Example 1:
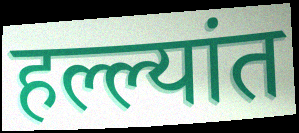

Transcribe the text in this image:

हल्ल्यांत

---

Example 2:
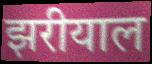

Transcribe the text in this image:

झरीयाल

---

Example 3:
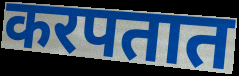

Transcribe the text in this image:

करपतात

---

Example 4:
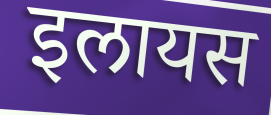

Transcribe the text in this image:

इलायस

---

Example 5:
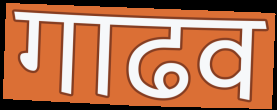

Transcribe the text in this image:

गाढव